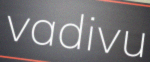
vadivu